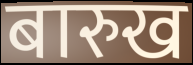
बारुख